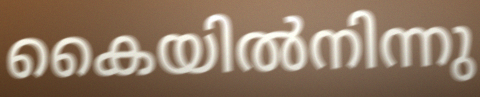
കൈയിൽനിന്നു